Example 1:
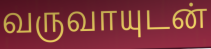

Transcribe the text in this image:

வருவாயுடன்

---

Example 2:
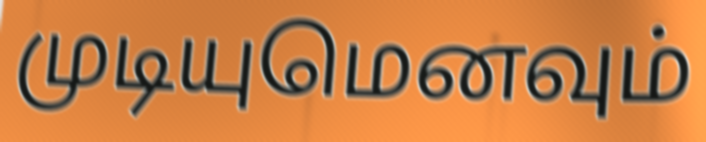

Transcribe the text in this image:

முடியுமெனவும்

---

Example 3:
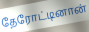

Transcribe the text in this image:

தேரோட்டினான்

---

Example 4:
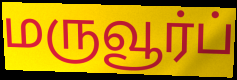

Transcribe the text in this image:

மருவூர்ப்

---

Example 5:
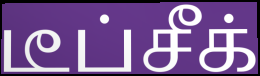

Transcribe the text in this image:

டீப்சீக்